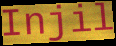
Injil